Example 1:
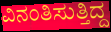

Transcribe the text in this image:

ವಿನಂತಿಸುತ್ತಿದ್ದ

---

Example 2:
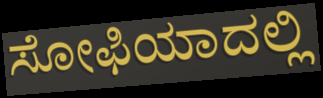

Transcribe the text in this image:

ಸೋಫಿಯಾದಲ್ಲಿ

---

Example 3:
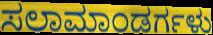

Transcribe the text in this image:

ಸಲಾಮಾಂಡರ್ಗಳು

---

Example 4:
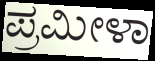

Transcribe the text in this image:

ಪ್ರಮೀಳಾ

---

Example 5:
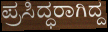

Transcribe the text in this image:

ಪ್ರಸಿದ್ಧರಾಗಿದ್ದ